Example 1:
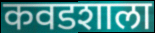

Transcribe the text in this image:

कवडशाला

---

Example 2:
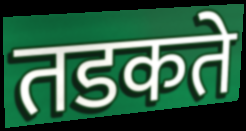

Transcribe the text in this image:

तडकते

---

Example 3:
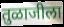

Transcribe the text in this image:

तुळाजीला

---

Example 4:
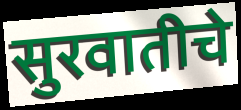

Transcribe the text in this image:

सुरवातीचे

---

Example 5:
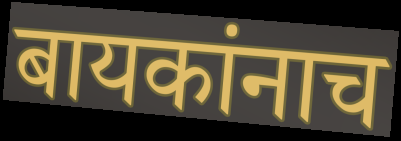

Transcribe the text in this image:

बायकांनाच